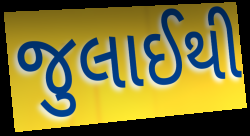
જુલાઈથી